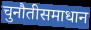
चुनौतीसमाधान